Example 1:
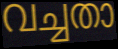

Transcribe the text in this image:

വച്ചതാ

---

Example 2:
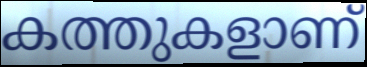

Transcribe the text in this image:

കത്തുകളാണ്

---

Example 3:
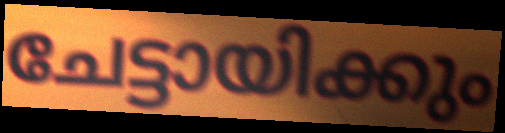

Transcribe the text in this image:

ചേട്ടായിക്കും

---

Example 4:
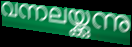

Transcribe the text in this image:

വന്നലയ്ക്കുന്നു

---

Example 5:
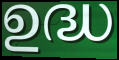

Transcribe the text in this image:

ഉദ്ധ